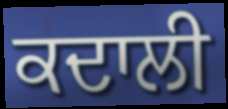
ਕਦਾਲੀ